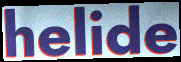
helide